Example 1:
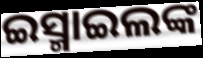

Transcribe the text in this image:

ଇସ୍ମାଇଲଙ୍କ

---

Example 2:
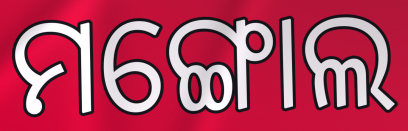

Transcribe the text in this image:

ମଙ୍ଗୋଲ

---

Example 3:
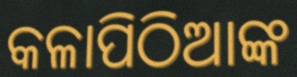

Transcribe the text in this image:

କଳାପିଠିଆଙ୍କ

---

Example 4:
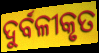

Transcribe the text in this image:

ଦୁର୍ବଳୀକୃତ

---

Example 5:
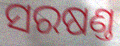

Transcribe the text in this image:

ସରଷଣ୍ତ